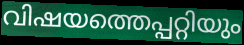
വിഷയത്തെപ്പറ്റിയും